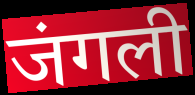
जंगली